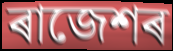
ৰাজেশৰ